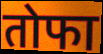
तोफा